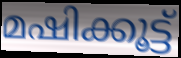
മഷിക്കൂട്ട്